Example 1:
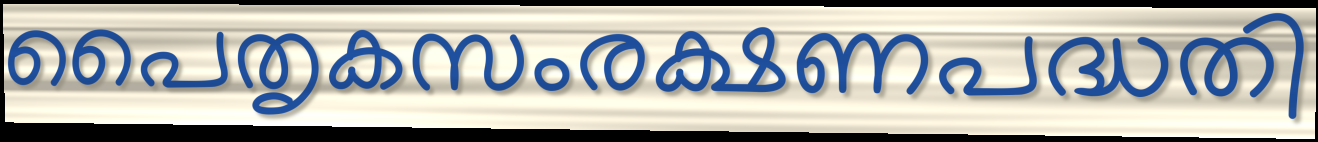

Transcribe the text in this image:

പൈതൃകസംരക്ഷണപദ്ധതി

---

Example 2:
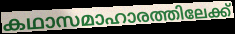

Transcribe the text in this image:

കഥാസമാഹാരത്തിലേക്ക്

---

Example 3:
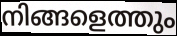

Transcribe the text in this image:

നിങ്ങളെത്തും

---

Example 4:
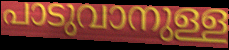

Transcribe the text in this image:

പാടുവാനുള്ള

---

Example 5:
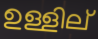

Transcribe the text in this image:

ഉള്ളില്